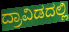
ದ್ರಾವಿಡದಲ್ಲಿ